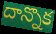
దాన్నొక